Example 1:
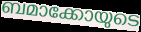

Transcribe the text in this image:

ബമാക്കോയുടെ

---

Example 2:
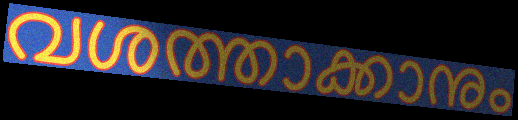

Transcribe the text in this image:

വശത്താക്കാനും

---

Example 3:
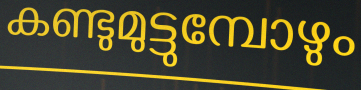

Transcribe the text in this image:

കണ്ടുമുട്ടുമ്പോഴും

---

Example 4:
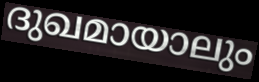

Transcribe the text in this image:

ദുഖമായാലും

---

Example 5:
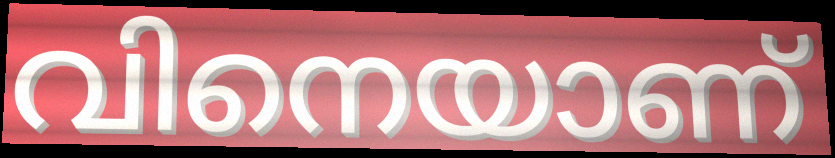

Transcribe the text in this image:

വിനെയാണ്